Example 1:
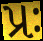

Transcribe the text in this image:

પ્રઃ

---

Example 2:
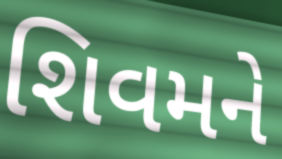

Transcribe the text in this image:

શિવમને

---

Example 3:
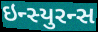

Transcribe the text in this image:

ઇન્સ્યુરન્સ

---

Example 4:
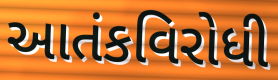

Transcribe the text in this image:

આતંકવિરોધી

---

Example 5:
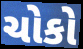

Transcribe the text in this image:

ચોકો